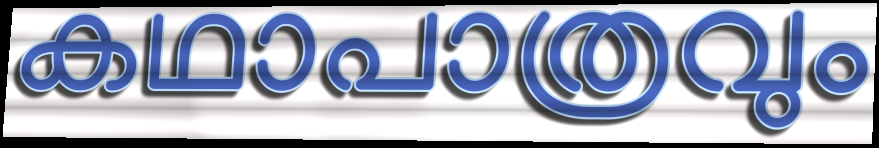
കഥാപാത്രവും